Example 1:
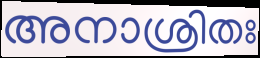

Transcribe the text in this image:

അനാശ്രിതഃ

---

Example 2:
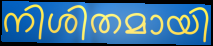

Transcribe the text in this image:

നിശിതമായി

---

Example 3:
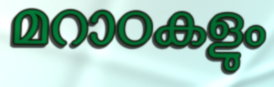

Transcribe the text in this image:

മറാഠകളും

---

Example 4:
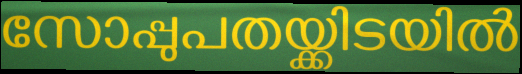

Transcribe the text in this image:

സോപ്പുപതയ്ക്കിടയിൽ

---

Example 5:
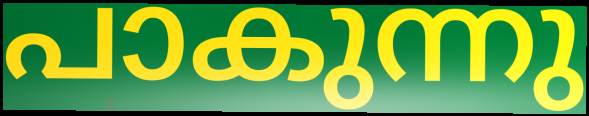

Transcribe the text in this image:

പാകുന്നു